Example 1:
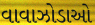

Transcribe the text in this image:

વાવાઝોડાઓ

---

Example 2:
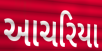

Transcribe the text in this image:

આચરિયા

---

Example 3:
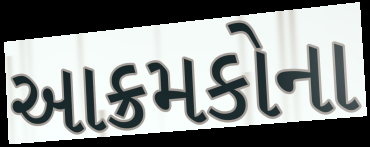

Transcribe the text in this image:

આક્રમકોના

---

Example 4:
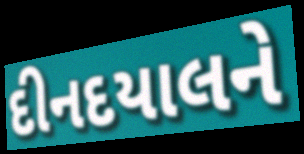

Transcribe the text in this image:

દીનદયાલને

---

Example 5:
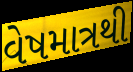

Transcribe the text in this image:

વેષમાત્રથી